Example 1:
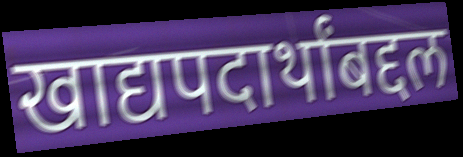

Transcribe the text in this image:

खाद्यपदार्थांबद्दल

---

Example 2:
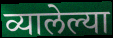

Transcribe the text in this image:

व्यालेल्या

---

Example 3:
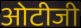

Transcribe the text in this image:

ओटीजी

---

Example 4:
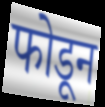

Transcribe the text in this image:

फोडून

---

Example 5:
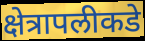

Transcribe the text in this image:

क्षेत्रापलीकडे